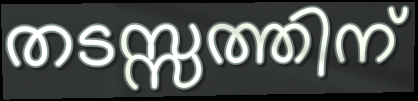
തടസ്സത്തിന്